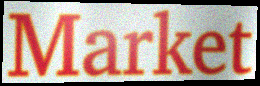
Market